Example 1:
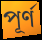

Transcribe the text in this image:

পূর্ণ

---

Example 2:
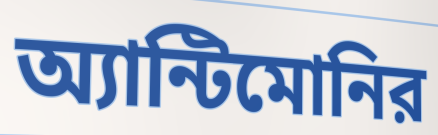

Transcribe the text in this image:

অ্যান্টিমোনির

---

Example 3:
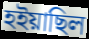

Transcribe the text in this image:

হইয়াছিল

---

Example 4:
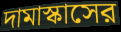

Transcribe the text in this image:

দামাস্কাসের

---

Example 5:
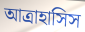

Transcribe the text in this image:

আত্রাহাসিস